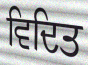
ਵਿਦਿਤ